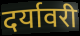
दर्यावरी